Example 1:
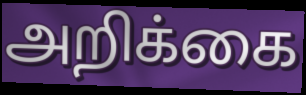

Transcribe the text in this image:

அறிக்கை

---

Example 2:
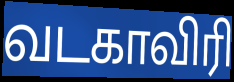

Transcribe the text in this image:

வடகாவிரி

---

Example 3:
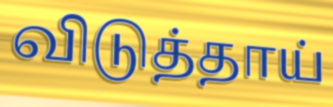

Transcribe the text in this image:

விடுத்தாய்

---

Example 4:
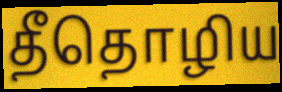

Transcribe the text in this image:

தீதொழிய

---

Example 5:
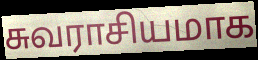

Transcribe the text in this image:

சுவராசியமாக